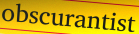
obscurantist